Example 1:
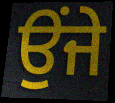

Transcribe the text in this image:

ਉਂਜੇ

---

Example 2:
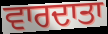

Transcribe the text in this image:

ਵਾਰਦਾਤਾ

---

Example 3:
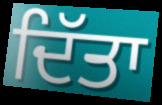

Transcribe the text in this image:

ਦਿੱਤਾ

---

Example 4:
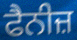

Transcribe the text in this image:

ਫੈਨੀਜ਼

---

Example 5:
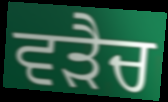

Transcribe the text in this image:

ਵੜੈਚ